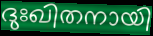
ദുഃഖിതനായി